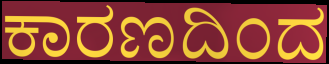
ಕಾರಣದಿಂದ